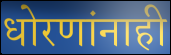
धोरणांनाही